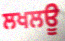
ਲਖਲਊ